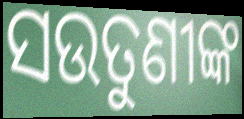
ସଉତୁଣୀଙ୍କ